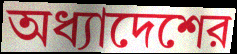
অধ্যাদেশের